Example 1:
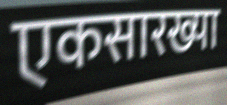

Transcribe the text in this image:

एकसारख्या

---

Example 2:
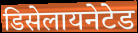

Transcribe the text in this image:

डिसेलायनेटेड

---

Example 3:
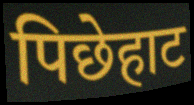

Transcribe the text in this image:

पिछेहाट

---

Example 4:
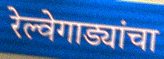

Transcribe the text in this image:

रेल्वेगाड्यांचा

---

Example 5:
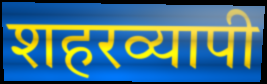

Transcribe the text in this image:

शहरव्यापी